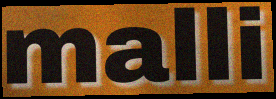
malli